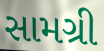
સામગ્રી